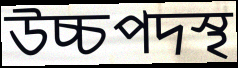
উচ্চপদস্থ